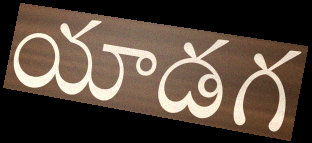
యాడగ